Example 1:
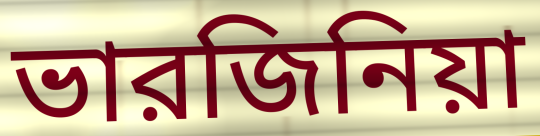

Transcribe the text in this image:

ভারজিনিয়া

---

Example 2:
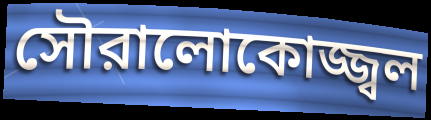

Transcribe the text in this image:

সৌরালোকোজ্জ্বল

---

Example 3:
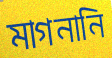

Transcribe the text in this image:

মাগনানি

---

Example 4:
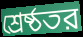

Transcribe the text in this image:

শ্রেষ্ঠতর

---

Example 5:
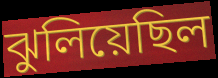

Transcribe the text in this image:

ঝুলিয়েছিল